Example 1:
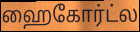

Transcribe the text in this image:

ஹைகோர்ட்ல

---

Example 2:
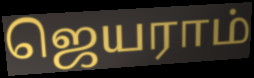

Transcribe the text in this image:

ஜெயராம்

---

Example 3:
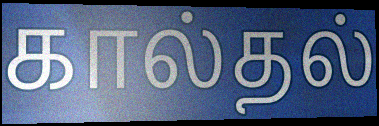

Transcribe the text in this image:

கால்தல்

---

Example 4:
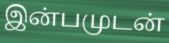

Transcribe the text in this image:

இன்பமுடன்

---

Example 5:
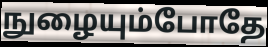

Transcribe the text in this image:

நுழையும்போதே